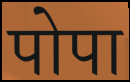
पोपा